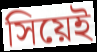
সিয়েই